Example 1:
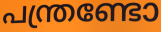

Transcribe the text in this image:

പന്ത്രണ്ടോ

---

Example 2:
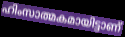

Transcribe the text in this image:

ഹിംസാത്മകമായിട്ടാണ്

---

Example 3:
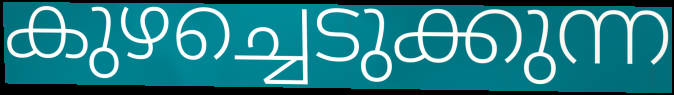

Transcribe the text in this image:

കുഴച്ചെടുക്കുന്ന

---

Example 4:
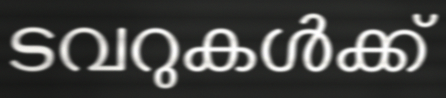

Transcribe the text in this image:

ടവറുകൾക്ക്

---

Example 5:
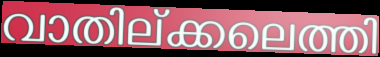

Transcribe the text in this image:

വാതില്ക്കലെത്തി